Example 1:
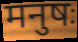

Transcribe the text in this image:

मनुषः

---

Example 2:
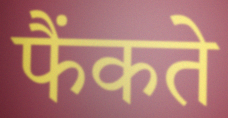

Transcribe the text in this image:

फैंकते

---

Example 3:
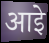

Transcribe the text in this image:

आइे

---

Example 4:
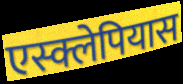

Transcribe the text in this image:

एस्क्लेपियास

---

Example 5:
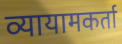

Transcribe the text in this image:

व्यायामकर्ता